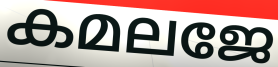
കമലജേ